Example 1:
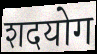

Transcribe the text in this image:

शदयोग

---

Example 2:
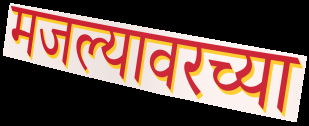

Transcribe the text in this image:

मजल्यावरच्या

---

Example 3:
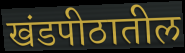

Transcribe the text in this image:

खंडपीठातील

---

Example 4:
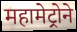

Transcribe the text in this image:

महामेट्रोने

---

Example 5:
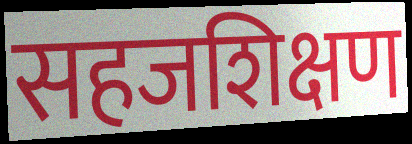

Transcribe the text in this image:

सहजशिक्षण